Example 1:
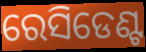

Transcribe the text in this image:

ରେସିଡେଣ୍ଟ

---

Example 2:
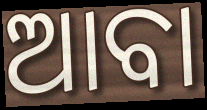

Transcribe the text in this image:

ଆବା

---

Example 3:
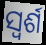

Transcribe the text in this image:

ସ୍ୱର୍ଶ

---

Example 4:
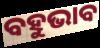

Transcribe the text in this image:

ବହୁଭାବ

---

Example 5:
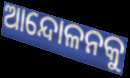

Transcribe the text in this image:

ଆନ୍ଦୋଳନକୁ